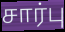
சார்பு